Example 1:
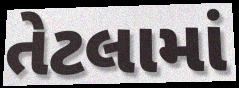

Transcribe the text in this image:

તેટલામાં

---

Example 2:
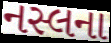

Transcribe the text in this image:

નસ્લના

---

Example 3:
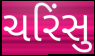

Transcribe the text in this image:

ચરિંસુ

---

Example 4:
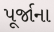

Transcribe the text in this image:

પૂર્જાના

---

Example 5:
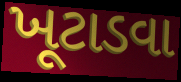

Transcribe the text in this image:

ખૂટાડવા